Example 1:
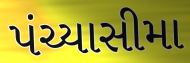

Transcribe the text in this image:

પંચ્યાસીમા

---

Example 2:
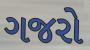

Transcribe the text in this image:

ગજરો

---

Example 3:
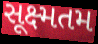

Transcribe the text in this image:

સૂક્ષ્મતમ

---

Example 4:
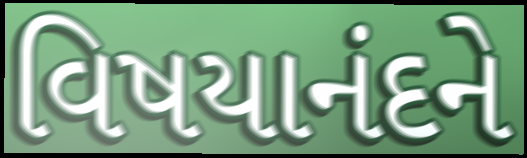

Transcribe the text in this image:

વિષયાનંદને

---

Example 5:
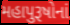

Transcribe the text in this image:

મહાપુરૂષોનાં